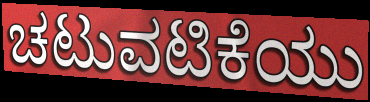
ಚಟುವಟಿಕೆಯು